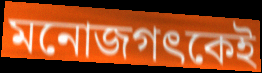
মনোজগৎকেই